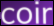
coir